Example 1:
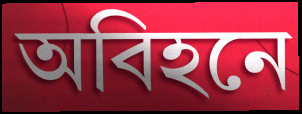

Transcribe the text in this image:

অবিহনে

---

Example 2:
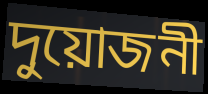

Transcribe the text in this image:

দুয়োজনী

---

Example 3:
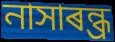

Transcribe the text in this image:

নাসাৰন্ধ্ৰ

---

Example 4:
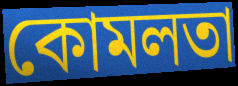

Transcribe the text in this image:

কোমলতা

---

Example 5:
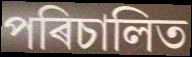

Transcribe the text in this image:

পৰিচালিত